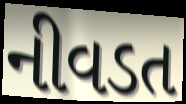
નીવડત